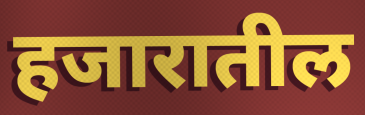
हजारातील